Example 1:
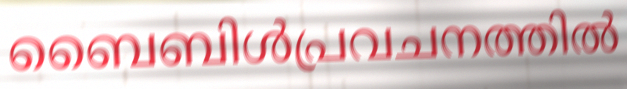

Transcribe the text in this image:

ബൈബിൾപ്രവചനത്തിൽ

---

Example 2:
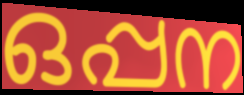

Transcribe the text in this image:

ഒപ്പന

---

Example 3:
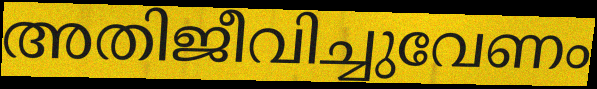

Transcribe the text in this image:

അതിജീവിച്ചുവേണം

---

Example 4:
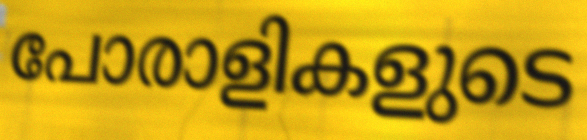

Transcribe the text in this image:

പോരാളികളുടെ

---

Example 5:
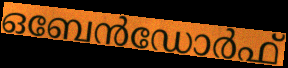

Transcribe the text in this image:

ഒബേൻഡോർഫ്